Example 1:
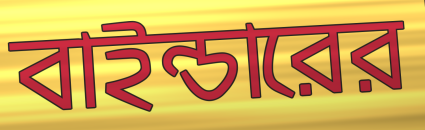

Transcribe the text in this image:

বাইন্ডারের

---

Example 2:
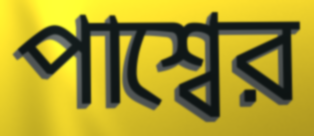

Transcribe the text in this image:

পাশ্বের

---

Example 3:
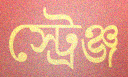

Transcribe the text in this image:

স্ট্রেঞ্জ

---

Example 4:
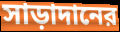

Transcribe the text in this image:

সাড়াদানের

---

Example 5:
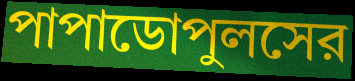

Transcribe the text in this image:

পাপাডোপুলসের